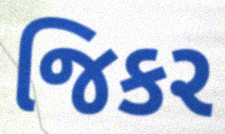
જિકર